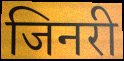
जिनरी